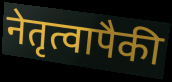
नेतृत्वापैकी